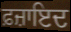
ਫ਼ਜ਼ਾਇਦ